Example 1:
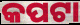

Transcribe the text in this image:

କପଟା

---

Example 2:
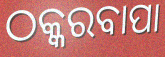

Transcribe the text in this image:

ଠକ୍କରବାପା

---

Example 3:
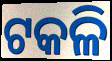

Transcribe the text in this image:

ଟକଳି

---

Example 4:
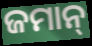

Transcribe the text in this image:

ଜମାନ୍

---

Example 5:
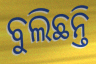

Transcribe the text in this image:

ବୁଲିଛନ୍ତି